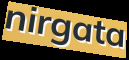
nirgata